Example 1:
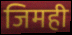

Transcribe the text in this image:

जिमही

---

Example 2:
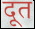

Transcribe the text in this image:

दूत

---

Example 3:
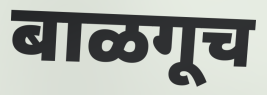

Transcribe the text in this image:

बाळगूच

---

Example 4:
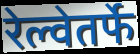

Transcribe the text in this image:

रेल्वेतर्फे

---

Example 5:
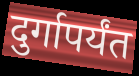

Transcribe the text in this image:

दुर्गापर्यंत